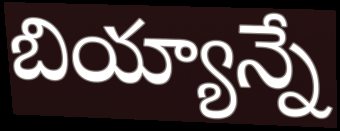
బియ్యాన్నే